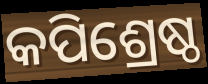
କପିଶ୍ରେଷ୍ଠ